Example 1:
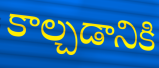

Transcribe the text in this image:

కాల్చడానికి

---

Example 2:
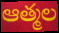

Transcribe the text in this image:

ఆత్మల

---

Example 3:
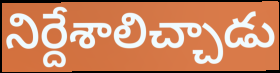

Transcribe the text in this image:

నిర్దేశాలిచ్చాడు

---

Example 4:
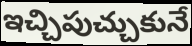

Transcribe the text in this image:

ఇచ్చిపుచ్చుకునే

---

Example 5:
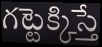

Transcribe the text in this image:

గట్టెక్కిస్తే